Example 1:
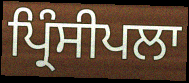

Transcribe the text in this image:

ਪ੍ਰਿੰਸੀਪਲਾ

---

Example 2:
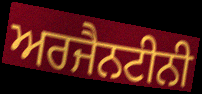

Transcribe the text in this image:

ਅਰਜੈਨਟੀਨੀ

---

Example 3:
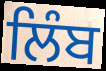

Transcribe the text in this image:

ਲਿੰਬ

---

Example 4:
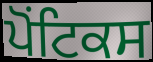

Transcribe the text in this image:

ਪੋਂਟਿਕਸ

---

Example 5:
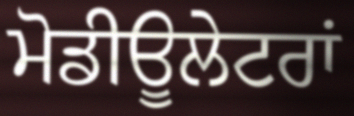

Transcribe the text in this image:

ਮੋਡੀਊਲੇਟਰਾਂ